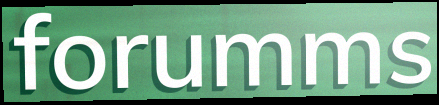
forumms